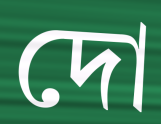
দো